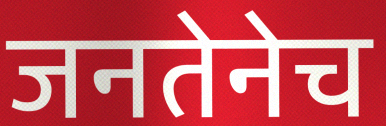
जनतेनेच